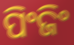
ପିଂଜିଂ